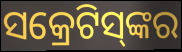
ସକ୍ରେଟିସ୍‌ଙ୍କର